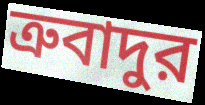
ত্রুবাদুর